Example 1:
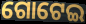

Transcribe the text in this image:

ଗୋଟେଇ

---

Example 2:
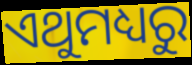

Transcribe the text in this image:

ଏଥୁମଧ୍ୟରୁ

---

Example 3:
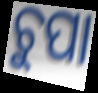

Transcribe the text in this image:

ଚୁପା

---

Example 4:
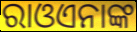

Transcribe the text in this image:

ରାଓଏନାଙ୍କ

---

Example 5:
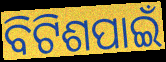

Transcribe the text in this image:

ବିଟିଶପାଇଁ